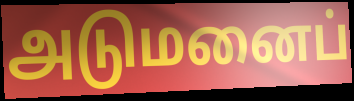
அடுமனைப்